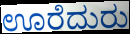
ಊರೆದುರು